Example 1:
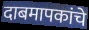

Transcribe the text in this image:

दाबमापकांचे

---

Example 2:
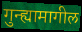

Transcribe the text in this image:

गुन्ह्यामागील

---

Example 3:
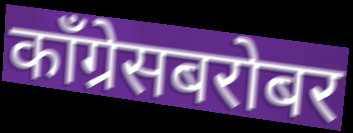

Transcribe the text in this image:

काँग्रेसबरोबर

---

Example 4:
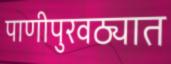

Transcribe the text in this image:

पाणीपुरवठ्यात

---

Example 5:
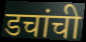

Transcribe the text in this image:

डचांची